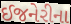
ઈજનેરીના